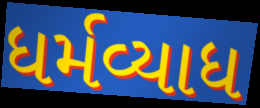
ધર્મવ્યાધ